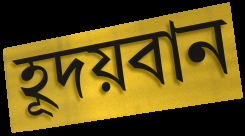
হূদয়বান